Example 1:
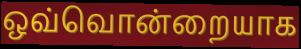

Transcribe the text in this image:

ஒவ்வொன்றையாக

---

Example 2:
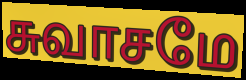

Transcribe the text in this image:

சுவாசமே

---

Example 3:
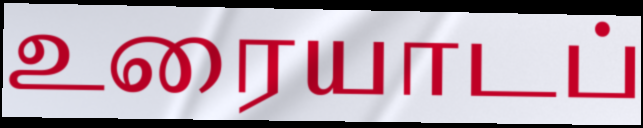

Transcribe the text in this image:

உரையாடப்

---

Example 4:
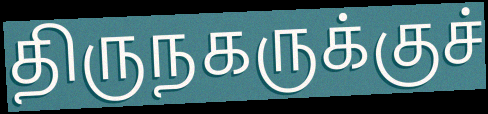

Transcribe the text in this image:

திருநகருக்குச்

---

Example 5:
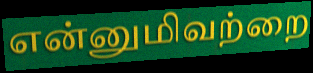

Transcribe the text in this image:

என்னுமிவற்றை